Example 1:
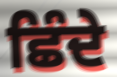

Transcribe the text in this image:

ਛਿੰਦੇ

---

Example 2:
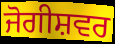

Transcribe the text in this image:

ਜੋਗੀਸ਼ਵਰ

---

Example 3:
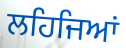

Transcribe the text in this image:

ਲਹਿਜਿਆਂ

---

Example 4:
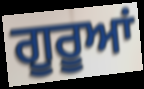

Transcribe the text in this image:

ਗੂਰੂਆਂ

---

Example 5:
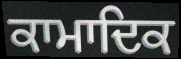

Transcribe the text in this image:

ਕਾਮਾਦਿਕ